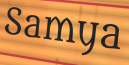
Samya